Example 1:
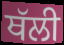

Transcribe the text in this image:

ਥੱਲੀ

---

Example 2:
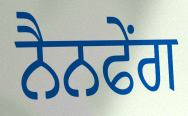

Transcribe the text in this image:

ਨੈਨਫੇਂਗ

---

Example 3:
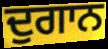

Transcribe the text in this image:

ਦੁਗਾਨ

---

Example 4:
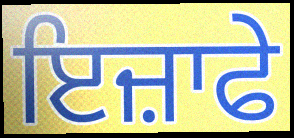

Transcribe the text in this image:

ਇਜ਼ਾਫੇ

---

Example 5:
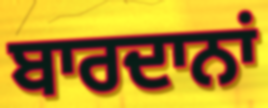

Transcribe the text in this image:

ਬਾਰਦਾਨਾਂ